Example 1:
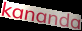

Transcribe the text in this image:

kananda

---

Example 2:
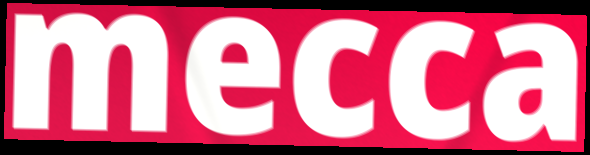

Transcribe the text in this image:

mecca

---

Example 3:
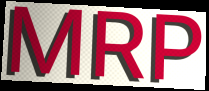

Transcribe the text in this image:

MRP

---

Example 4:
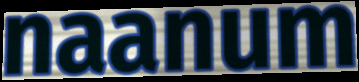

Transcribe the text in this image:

naanum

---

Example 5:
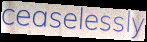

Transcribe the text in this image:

ceaselessly